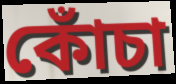
কোঁচা